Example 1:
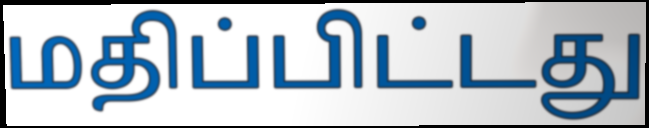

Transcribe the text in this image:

மதிப்பிட்டது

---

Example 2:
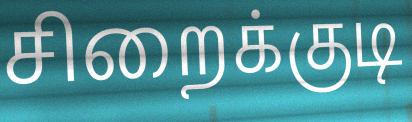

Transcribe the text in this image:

சிறைக்குடி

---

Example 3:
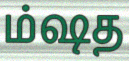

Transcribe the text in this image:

ம்ஷத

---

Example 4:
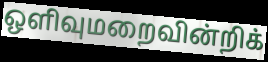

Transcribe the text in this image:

ஒளிவுமறைவின்றிக்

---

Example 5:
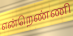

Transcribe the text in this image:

என்றெண்ணி